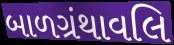
બાળગ્રંથાવલિ